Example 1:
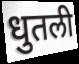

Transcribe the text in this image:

धुतली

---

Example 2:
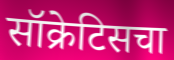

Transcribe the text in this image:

सॉक्रेटिसचा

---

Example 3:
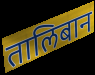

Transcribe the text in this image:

तालिबान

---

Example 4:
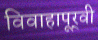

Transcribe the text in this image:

विवाहापूर्वी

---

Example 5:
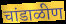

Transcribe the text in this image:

चांडाळीण